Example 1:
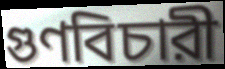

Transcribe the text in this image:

গুণবিচারী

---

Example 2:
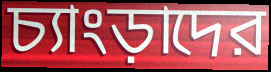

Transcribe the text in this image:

চ্যাংড়াদের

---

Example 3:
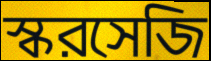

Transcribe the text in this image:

স্করসেজি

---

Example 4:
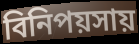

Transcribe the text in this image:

বিনিপয়সায়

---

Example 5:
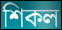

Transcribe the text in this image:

শিকল